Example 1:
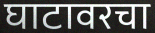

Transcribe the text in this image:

घाटावरचा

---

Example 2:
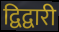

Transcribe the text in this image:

द्विद्वारी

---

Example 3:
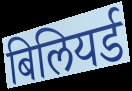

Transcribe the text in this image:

बिलियर्ड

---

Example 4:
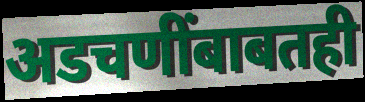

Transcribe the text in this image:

अडचणींबाबतही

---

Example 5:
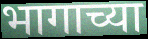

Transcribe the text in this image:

भागाच्या